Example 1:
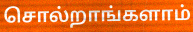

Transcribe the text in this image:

சொல்றாங்களாம்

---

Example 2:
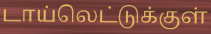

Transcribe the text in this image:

டாய்லெட்டுக்குள்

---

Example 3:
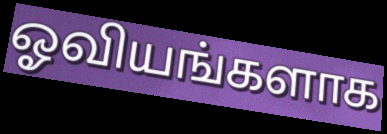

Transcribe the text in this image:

ஓவியங்களாக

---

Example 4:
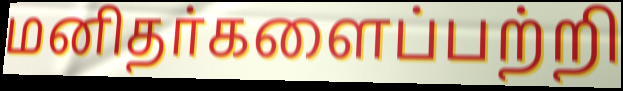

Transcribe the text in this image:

மனிதர்களைப்பற்றி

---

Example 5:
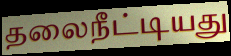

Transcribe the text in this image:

தலைநீட்டியது